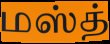
மஸ்த்